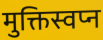
मुक्तिस्वप्न